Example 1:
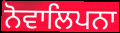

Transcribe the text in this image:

ਨੋਵਾਲਿਪਨਾ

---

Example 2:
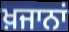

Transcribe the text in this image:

ਖ਼ਜਾਨਾਂ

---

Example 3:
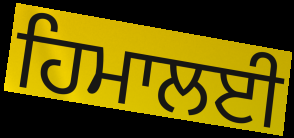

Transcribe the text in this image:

ਹਿਮਾਲਈ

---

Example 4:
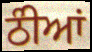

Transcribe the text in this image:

ਠੰੀਆਂ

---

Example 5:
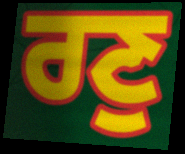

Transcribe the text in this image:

ਰਣੁ